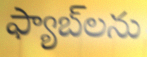
ఫ్యాబ్‌లను